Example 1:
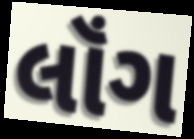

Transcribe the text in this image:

લૉંગ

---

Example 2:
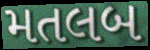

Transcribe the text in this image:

મતલબ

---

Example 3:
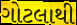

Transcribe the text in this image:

ગોટલાથી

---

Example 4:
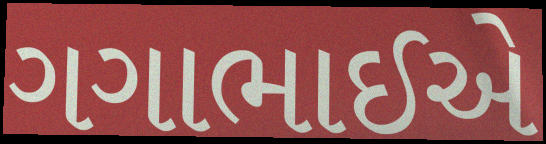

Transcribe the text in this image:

ગગાભાઈએ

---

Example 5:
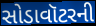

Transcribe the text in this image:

સોડાવૉટરની